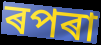
ৰপৰা